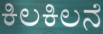
ಕಿಲಕಿಲನೆ